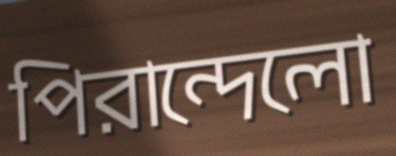
পিরান্দেলো